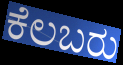
ಕೆಲಬರು